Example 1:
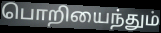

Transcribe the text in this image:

பொறியைந்தும்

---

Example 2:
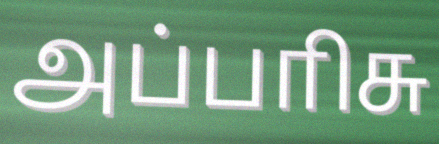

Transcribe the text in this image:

அப்பரிசு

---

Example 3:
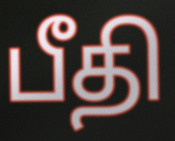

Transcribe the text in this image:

பீதி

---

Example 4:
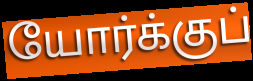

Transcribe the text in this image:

யோர்க்குப்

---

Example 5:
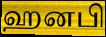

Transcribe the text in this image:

ஹனபி